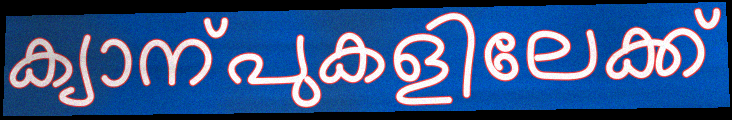
ക്യാന്പുകളിലേക്ക്